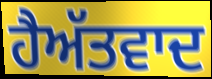
ਹੈਅੱਤਵਾਦ